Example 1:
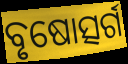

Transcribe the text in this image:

ବୃଷୋତ୍ସର୍ଗ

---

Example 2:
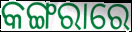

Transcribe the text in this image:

କଙ୍ଗରାରେ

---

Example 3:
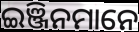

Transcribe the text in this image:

ଇଞ୍ଜିନମାନେ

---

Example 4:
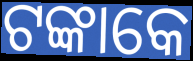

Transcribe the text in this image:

ଟଙ୍କାକେ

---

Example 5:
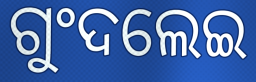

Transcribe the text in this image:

ଗୁଂଦଲେଇ